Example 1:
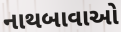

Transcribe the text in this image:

નાથબાવાઓ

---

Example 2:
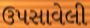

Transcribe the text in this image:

ઉપસાવેલી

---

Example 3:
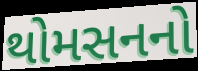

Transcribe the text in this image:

થોમસનનો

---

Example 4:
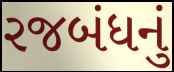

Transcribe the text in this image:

રજબંધનું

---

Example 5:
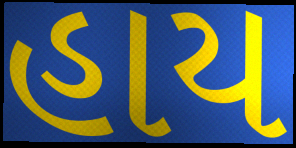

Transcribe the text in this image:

હાય